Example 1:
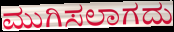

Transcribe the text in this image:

ಮುಗಿಸಲಾಗದು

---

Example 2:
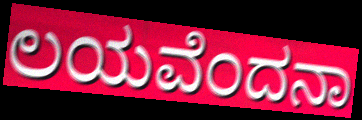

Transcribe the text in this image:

ಲಯವೆಂದನಾ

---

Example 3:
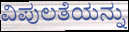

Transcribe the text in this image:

ವಿಪುಲತೆಯನ್ನು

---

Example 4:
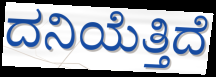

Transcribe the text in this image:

ದನಿಯೆತ್ತಿದೆ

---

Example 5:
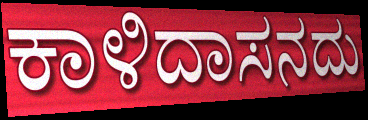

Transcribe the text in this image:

ಕಾಳಿದಾಸನದು